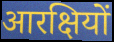
आरक्षियों